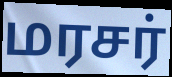
மரசர்